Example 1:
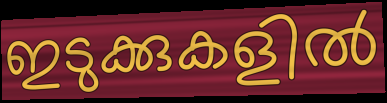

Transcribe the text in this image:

ഇടുക്കുകളിൽ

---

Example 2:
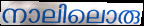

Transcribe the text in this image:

നാലിലൊരു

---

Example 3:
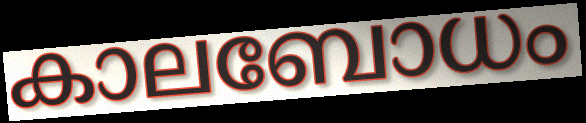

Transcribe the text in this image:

കാലബോധം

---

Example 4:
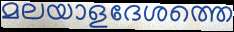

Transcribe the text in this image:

മലയാളദേശത്തെ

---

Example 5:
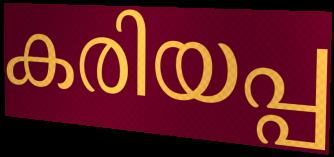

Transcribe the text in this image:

കരിയപ്പ